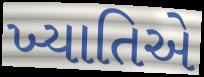
ખ્યાતિએ